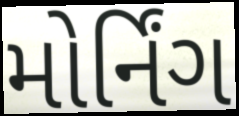
મોર્નિંગ